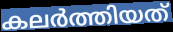
കലർത്തിയത്